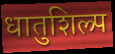
धातुशिल्प